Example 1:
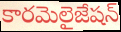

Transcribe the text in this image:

కారమెలైజేషన్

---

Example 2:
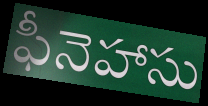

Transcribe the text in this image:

ఫీనెహాసు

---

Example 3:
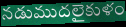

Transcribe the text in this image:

నడుముదలైకుళం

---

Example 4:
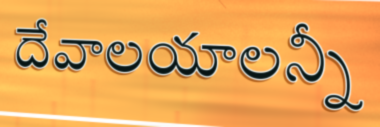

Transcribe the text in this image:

దేవాలయాలన్నీ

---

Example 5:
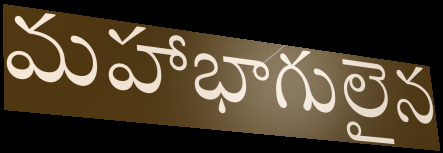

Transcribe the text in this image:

మహాభాగులైన